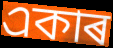
একাৰ